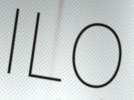
ILO